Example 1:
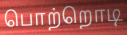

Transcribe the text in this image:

பொற்றொடி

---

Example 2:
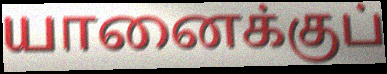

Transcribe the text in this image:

யானைக்குப்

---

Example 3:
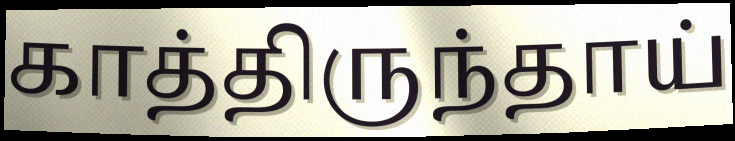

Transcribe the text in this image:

காத்திருந்தாய்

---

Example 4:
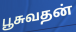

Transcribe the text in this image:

பூசுவதன்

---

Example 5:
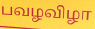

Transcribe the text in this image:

பவழவிழா